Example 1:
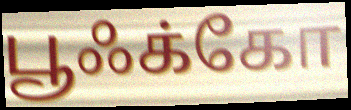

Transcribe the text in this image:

பூஃக்கோ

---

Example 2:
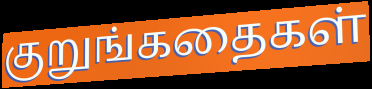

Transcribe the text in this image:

குறுங்கதைகள்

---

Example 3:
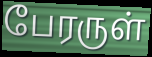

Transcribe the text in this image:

பேரருள்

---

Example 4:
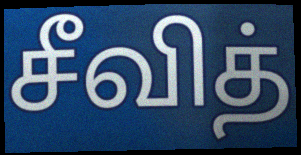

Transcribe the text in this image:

சீவித்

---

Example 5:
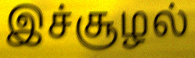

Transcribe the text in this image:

இச்சூழல்